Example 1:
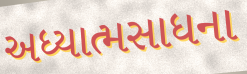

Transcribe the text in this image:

અધ્યાત્મસાધના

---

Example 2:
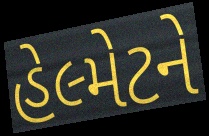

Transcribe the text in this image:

હેલ્મેટને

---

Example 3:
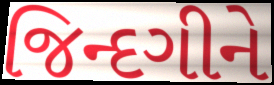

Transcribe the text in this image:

જિન્દગીને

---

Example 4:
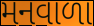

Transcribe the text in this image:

મનવાળા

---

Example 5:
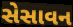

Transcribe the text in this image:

સેસાવન